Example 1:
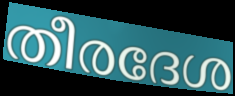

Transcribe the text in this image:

തീരദേശ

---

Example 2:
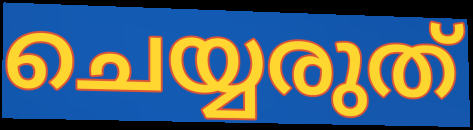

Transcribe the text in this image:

ചെയ്യരുത്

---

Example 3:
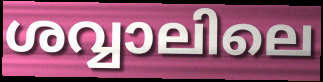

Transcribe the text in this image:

ശവ്വാലിലെ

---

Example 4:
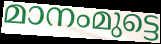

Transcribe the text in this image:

മാനംമുട്ടെ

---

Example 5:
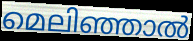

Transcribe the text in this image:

മെലിഞ്ഞാൽ